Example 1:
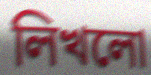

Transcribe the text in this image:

লিখলো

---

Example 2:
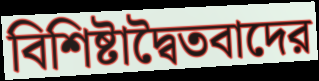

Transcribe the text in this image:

বিশিষ্টাদ্বৈতবাদের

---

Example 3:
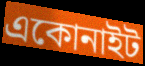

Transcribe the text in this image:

একোনাইট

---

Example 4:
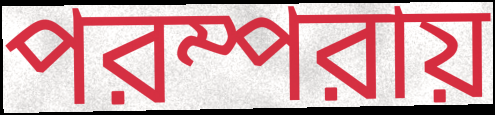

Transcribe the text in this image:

পরম্পরায়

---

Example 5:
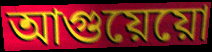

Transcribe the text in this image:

আগুয়েয়ো